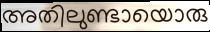
അതിലുണ്ടായൊരു